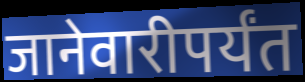
जानेवारीपर्यंत